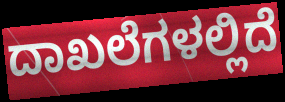
ದಾಖಲೆಗಳಲ್ಲಿದೆ